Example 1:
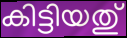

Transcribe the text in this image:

കിട്ടിയതു്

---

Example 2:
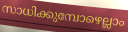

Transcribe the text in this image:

സാധിക്കുമ്പോഴെല്ലാം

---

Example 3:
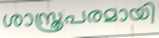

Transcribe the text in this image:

ശാസ്ത്രപരമായി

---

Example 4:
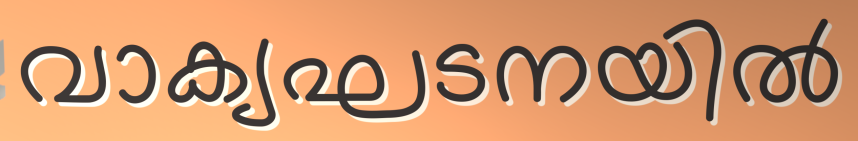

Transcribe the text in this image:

വാക്യഘടനയിൽ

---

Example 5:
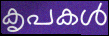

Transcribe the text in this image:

കൃപകൾ